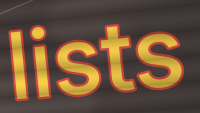
lists